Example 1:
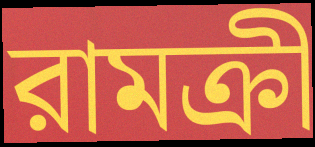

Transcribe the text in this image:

রামক্রী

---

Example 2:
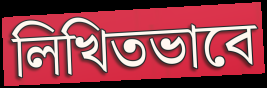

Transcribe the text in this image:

লিখিতভাবে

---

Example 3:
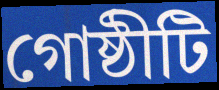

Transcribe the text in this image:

গোষ্ঠীটি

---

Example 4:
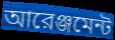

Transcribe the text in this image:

আরেঞ্জমেন্ট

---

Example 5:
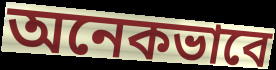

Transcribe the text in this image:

অনেকভাবে